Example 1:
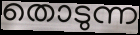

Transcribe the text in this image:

തൊടുന്ന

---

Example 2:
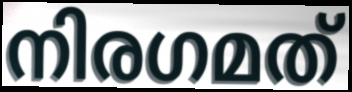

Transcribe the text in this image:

നിരഗമത്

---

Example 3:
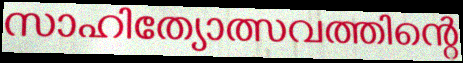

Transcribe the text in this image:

സാഹിത്യോത്സവത്തിന്റെ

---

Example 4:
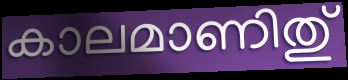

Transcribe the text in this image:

കാലമാണിതു്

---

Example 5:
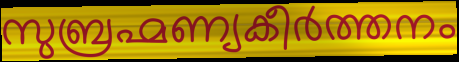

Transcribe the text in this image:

സുബ്രഹ്മണ്യകീർത്തനം